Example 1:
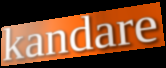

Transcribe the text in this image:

kandare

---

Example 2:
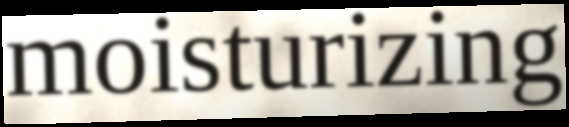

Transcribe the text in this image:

moisturizing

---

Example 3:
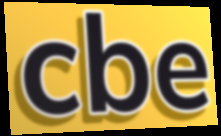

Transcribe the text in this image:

cbe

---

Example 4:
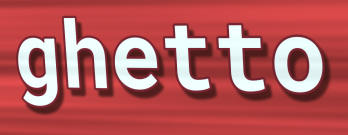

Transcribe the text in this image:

ghetto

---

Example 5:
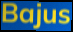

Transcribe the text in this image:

Bajus